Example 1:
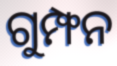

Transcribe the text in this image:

ଗୁମ୍ଫନ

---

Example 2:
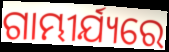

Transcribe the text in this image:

ଗାମ୍ଭୀର୍ଯ୍ୟରେ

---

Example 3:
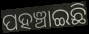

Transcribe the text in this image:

ପହଞ୍ଚାଇଛି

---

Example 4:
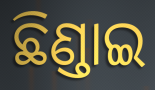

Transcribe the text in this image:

ଛିଣ୍ଡାଇ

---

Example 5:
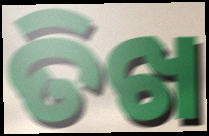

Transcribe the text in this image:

ତିଖ